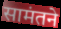
सामंतने